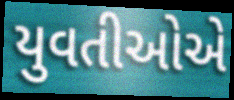
યુવતીઓએ